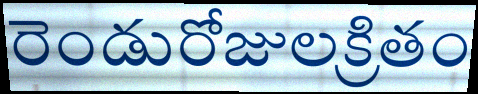
రెండురోజులక్రితం